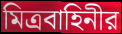
মিত্রবাহিনীর